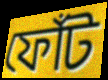
ফোঁট